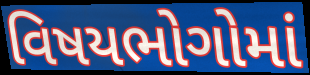
વિષયભોગોમાં